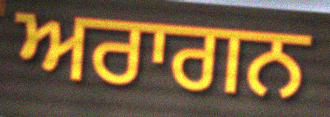
ਅਰਾਗਨ